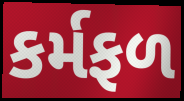
કર્મફળ